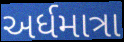
અર્ધમાત્રા